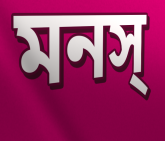
মনস্